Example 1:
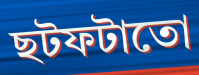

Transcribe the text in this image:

ছটফটাতো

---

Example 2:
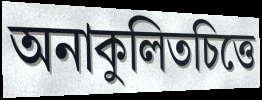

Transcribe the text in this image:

অনাকুলিতচিত্তে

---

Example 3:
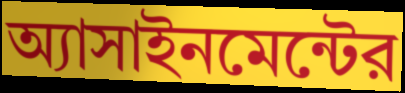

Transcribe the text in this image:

অ্যাসাইনমেন্টের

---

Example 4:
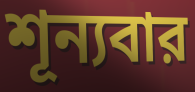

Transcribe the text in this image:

শূন্যবার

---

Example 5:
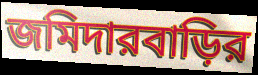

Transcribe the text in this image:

জমিদারবাড়ির